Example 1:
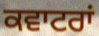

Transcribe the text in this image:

ਕਵਾਟਰਾਂ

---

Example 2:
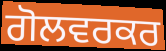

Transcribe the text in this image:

ਗੋਲਵਰਕਰ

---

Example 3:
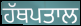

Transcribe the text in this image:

ਹੱਥਪਤਾਲ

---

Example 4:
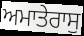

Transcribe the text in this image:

ਅਮਾਤੇਰਾਸੁ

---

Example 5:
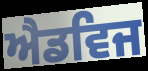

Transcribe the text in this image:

ਐਡਵਿਜ